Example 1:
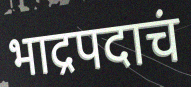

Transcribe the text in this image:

भाद्रपदाचं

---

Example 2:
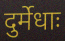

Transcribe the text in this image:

दुर्मेधाः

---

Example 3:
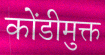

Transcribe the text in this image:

कोंडीमुक्त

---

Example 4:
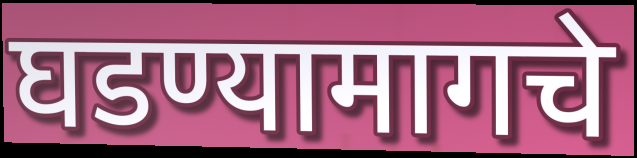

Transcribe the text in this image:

घडण्यामागचे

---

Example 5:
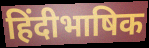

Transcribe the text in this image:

हिंदीभाषिक